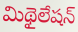
మిథైలేషన్